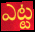
ఎట్ట